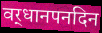
वर्धानपनदिन